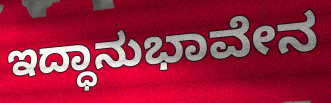
ಇದ್ಧಾನುಭಾವೇನ